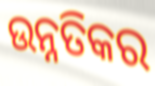
ଉନ୍ନତିକର